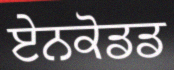
ਏਨਕੋਡਡ